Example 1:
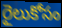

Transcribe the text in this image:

రైలుకోసం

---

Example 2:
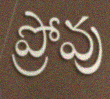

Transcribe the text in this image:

ప్రోవు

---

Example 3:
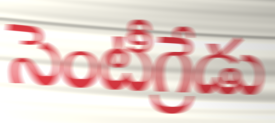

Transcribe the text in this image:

సెంటీగ్రేడు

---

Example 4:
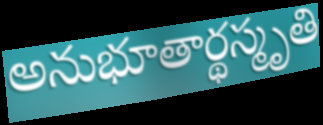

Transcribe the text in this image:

అనుభూతార్థస్మృతి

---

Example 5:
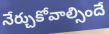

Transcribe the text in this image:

నేర్చుకోవాల్సిందే